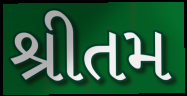
શ્રીતમ